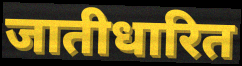
जातीधारित